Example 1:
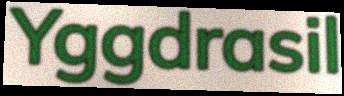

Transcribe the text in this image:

Yggdrasil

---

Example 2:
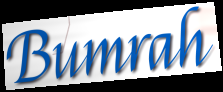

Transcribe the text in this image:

Bumrah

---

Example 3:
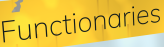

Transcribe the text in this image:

Functionaries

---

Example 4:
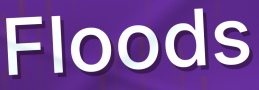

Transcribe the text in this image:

Floods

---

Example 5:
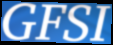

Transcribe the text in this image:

GFSI